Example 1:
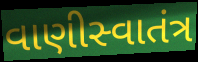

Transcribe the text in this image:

વાણીસ્વાતંત્ર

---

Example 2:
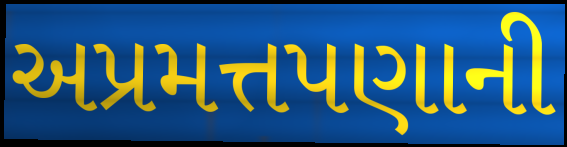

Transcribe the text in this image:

અપ્રમત્તપણાની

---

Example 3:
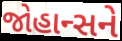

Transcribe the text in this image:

જોહાન્સને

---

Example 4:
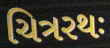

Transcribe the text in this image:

ચિત્રરથઃ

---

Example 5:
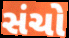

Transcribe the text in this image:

સંચો